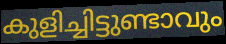
കുളിച്ചിട്ടുണ്ടാവും